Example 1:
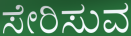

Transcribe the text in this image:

ಸೇರಿಸುವ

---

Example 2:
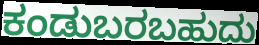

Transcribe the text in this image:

ಕಂಡುಬರಬಹುದು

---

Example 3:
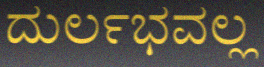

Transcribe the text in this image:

ದುರ್ಲಭವಲ್ಲ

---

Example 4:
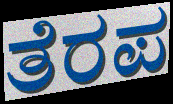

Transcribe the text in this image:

ತೆರಪ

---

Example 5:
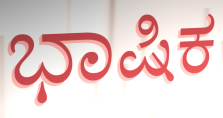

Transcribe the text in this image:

ಭಾಷಿಕ